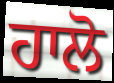
ਹਾਲੋ